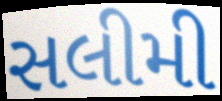
સલીમી